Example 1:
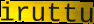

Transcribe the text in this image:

iruttu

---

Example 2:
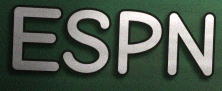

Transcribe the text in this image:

ESPN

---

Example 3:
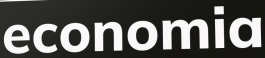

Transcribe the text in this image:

economia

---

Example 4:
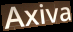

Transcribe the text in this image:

Axiva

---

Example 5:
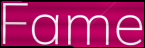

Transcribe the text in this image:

Fame